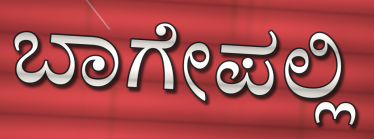
ಬಾಗೇಪಲ್ಲಿ